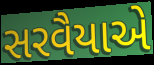
સરવૈયાએ